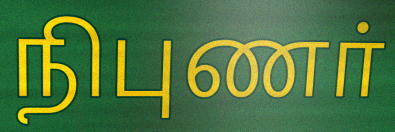
நிபுணர்